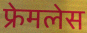
फ्रेमलेस